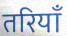
तरियाँ